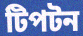
টিপটন